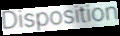
Disposition